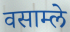
वसाम्ले